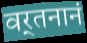
वर्तनानं